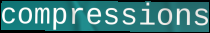
compressions